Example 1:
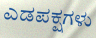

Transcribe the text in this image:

ಎಡಪಕ್ಷಗಳು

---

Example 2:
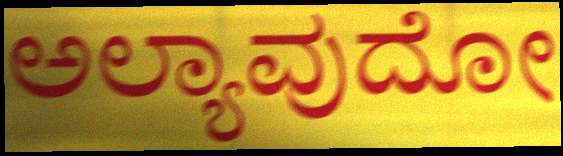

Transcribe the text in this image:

ಅಲ್ಯಾವುದೋ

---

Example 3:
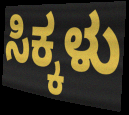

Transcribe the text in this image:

ಸಿಕ್ಕಳು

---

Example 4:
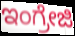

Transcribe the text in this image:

ಇಂಗ್ರೇಜಿ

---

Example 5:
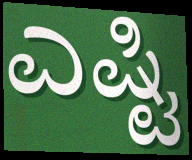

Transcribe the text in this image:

ಎಷ್ಟಿ